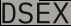
DSEX